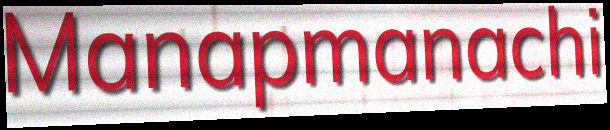
Manapmanachi